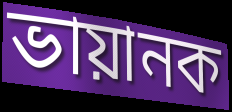
ভায়ানক